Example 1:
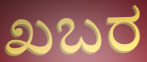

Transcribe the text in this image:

ಖಬರ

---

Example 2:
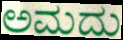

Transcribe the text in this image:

ಅಮದು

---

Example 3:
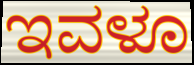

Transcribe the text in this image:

ಇವಳೂ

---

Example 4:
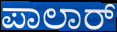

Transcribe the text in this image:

ಪಾಲಾರ್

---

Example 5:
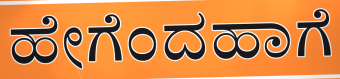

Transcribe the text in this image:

ಹೇಗೆಂದಹಾಗೆ